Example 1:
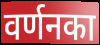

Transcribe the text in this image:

वर्णनका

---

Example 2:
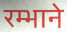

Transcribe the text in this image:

रम्भाने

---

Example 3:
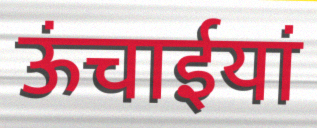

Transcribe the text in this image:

ऊंचाईयां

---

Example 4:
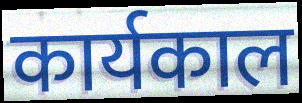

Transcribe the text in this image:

कार्यकाल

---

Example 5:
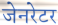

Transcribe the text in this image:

जेनरेटर